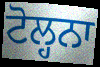
ਟੋਲ੍ਹਨਾ